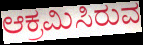
ಆಕ್ರಮಿಸಿರುವ